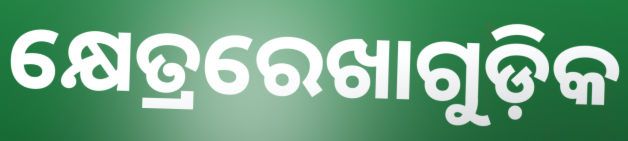
କ୍ଷେତ୍ରରେଖାଗୁଡ଼ିକ